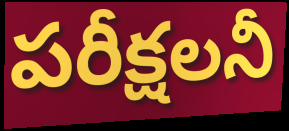
పరీక్షలనీ